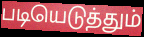
படியெடுத்தும்